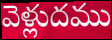
వెళ్లుదము